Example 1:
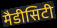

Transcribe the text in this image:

मैडीसिटी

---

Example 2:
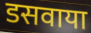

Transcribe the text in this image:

डसवाया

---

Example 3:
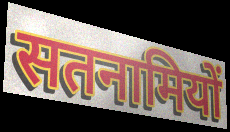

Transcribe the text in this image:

सतनामियों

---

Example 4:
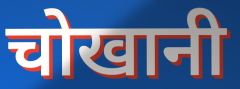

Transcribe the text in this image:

चोखानी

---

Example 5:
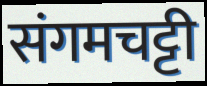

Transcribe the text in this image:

संगमचट्टी